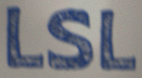
LSL